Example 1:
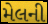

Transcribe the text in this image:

મેલની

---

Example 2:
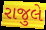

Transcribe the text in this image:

રાજુલે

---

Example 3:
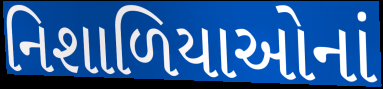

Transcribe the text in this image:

નિશાળિયાઓનાં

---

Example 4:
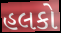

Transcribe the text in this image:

હલકો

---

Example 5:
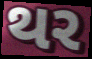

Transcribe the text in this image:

થર